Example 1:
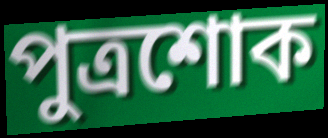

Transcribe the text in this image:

পুত্রশোক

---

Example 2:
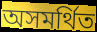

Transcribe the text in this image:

অসমর্থিত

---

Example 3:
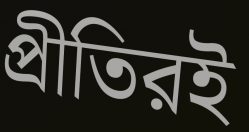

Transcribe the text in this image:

প্রীতিরই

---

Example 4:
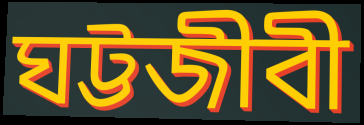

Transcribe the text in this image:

ঘট্টজীবী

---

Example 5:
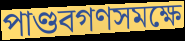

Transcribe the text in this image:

পাণ্ডবগণসমক্ষে